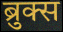
ब्रुक्‍स